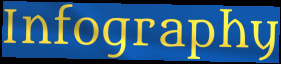
Infography